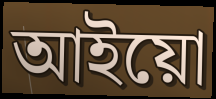
আইয়ো